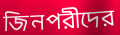
জিনপরীদের